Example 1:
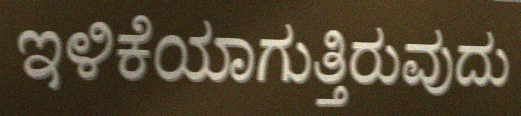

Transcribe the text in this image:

ಇಳಿಕೆಯಾಗುತ್ತಿರುವುದು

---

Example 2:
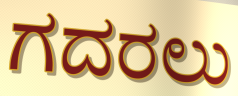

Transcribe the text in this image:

ಗದರಲು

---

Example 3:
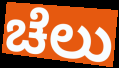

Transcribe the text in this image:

ಚೆಲು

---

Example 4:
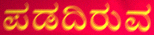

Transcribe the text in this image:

ಪಡದಿರುವ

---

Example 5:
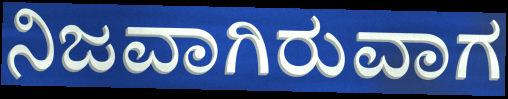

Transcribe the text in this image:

ನಿಜವಾಗಿರುವಾಗ